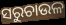
ସରୁଚାଉଳ